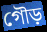
গৌড়